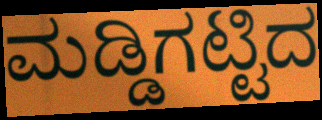
ಮಡ್ಡಿಗಟ್ಟಿದ